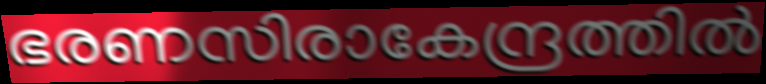
ഭരണസിരാകേന്ദ്രത്തിൽ